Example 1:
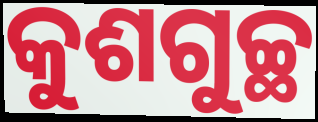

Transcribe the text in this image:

କୁଶଗୁଚ୍ଛ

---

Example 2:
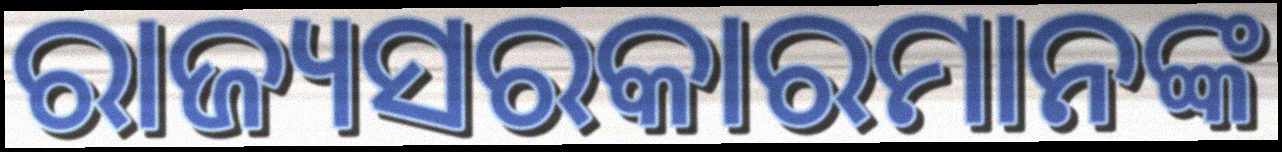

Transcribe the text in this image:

ରାଜ୍ୟସରକାରମାନଙ୍କ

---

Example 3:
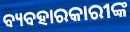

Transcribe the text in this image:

ବ୍ୟବହାରକାରୀଙ୍କ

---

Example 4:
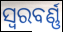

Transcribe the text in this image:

ସ୍ୱରବର୍ଣ୍ଣ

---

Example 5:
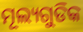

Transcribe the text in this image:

ମୂଲ୍ୟଗୁଡିକ